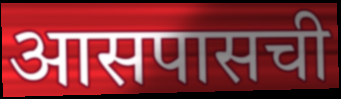
आसपासची